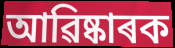
আৱিষ্কাৰক